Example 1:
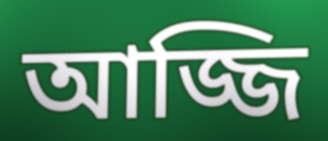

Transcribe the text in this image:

আজ্জি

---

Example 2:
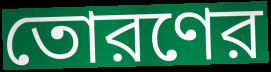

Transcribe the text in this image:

তোরণের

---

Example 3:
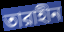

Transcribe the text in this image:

তারাহীন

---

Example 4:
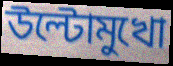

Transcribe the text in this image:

উল্টোমুখো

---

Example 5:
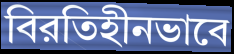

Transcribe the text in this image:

বিরতিহীনভাবে